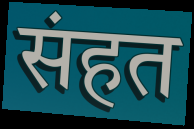
संहत